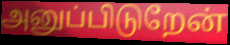
அனுப்பிடுறேன்